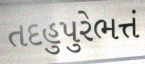
તદહુપુરેભત્તં